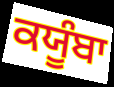
ਕਯੂੰਬਾ